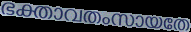
ഭക്താവതംസായതേ